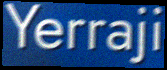
Yerraji